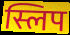
स्लिप